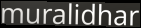
muralidhar